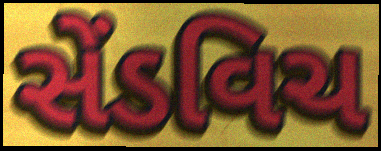
સેંડવિચ